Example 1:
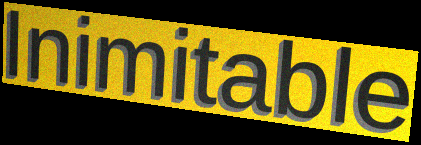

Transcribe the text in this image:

Inimitable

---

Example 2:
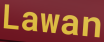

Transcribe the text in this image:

Lawan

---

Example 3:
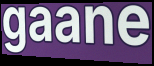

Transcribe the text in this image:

gaane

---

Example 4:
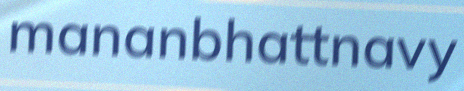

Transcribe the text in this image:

mananbhattnavy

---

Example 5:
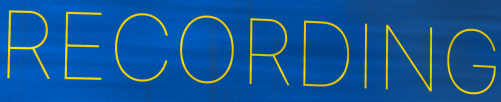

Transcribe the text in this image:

RECORDING